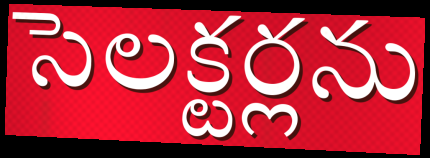
సెలక్టర్లను